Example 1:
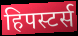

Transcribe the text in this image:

हिपस्टर्स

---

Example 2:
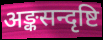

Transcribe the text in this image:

अङ्कसन्दृष्टि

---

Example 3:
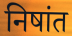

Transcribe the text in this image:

निषांत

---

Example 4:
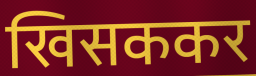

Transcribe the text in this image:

खिसककर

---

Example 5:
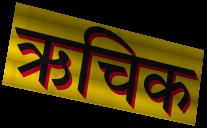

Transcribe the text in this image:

ऋचिक